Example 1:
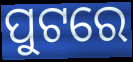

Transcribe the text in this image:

ପୁଟରେ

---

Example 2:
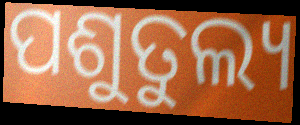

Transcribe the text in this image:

ପଶୁତୁଲ୍ୟ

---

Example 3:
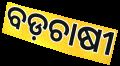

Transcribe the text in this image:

ବଡ଼ଚାଷୀ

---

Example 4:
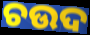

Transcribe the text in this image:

ଚଉଦ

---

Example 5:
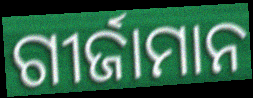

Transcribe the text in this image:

ଗୀର୍ଜାମାନ